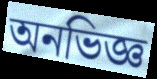
অনভিজ্ঞ